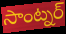
సాంట్నర్